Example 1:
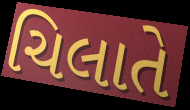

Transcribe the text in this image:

ચિલાતે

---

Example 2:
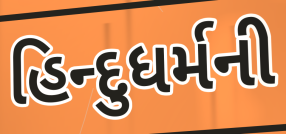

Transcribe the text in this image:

હિન્દુધર્મની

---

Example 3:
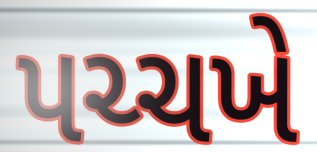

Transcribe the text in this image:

પચ્ચખે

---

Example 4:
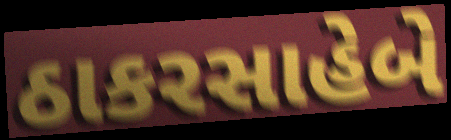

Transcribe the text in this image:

ઠાકરસાહેબે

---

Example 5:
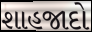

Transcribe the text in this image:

શાહજાદો